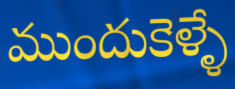
ముందుకెళ్ళే